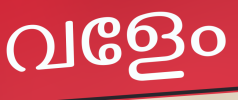
വളേം